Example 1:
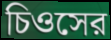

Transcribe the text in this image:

চিওসের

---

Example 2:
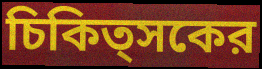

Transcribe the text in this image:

চিকিত্সকের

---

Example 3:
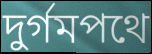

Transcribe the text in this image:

দুর্গমপথে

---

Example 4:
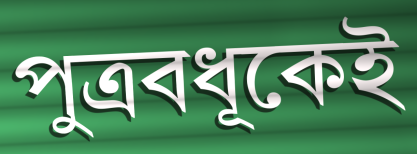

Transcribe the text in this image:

পুত্রবধূকেই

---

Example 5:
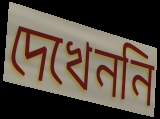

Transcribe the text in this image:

দেখেননি